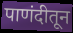
पाणंदीतून